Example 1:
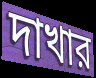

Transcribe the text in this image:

দাখার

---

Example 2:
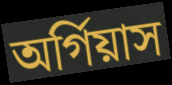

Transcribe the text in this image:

অর্গিয়াস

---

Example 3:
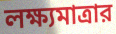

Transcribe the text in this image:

লক্ষ্যমাত্রার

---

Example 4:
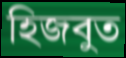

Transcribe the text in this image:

হিজবুত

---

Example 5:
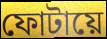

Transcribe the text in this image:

ফোটায়ে